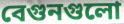
বেগুনগুলো